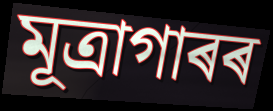
মূত্ৰাগাৰৰ